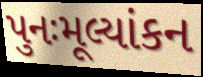
પુનઃમૂલ્યાંકન